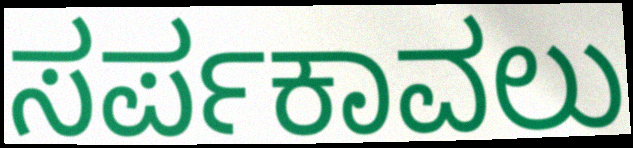
ಸರ್ಪಕಾವಲು